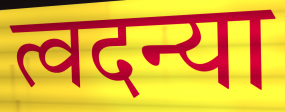
त्वदन्या